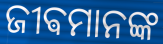
ଜୀଵମାନଙ୍କ